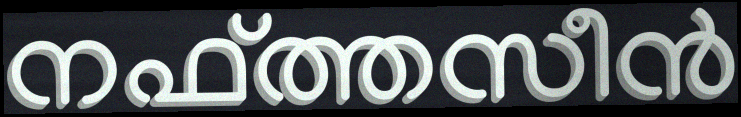
നഫ്ത്തസീൻ